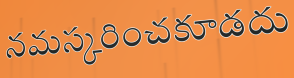
నమస్కరించకూడదు